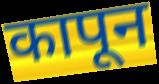
कापून